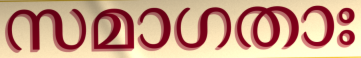
സമാഗതാഃ